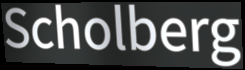
Scholberg